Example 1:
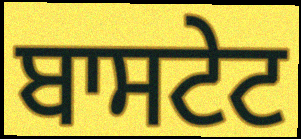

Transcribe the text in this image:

ਬਾਸਟੇਟ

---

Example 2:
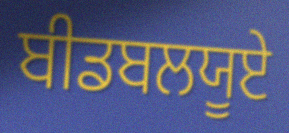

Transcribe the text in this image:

ਬੀਡਬਲਯੂਏ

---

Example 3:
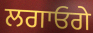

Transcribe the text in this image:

ਲਗਾਓਗੇ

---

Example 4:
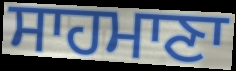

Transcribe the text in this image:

ਸਾਹਮਾਣਾ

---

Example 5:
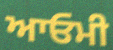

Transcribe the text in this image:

ਆਓਮੀ